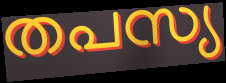
തപസ്യ